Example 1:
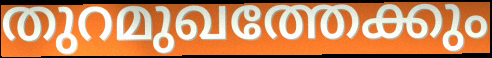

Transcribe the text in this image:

തുറമുഖത്തേക്കും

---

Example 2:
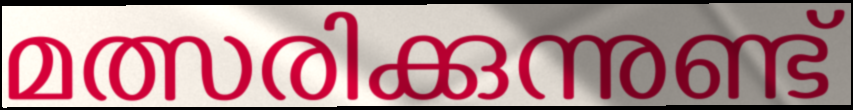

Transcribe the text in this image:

മത്സരിക്കുന്നുണ്ട്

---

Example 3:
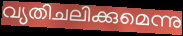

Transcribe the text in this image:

വ്യതിചലിക്കുമെന്നു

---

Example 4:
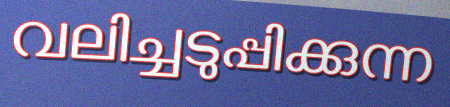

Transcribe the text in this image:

വലിച്ചടുപ്പിക്കുന്ന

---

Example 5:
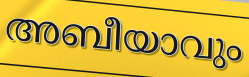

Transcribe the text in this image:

അബീയാവും